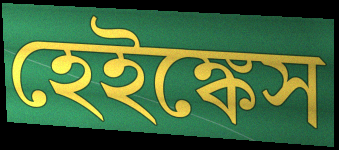
হেইঙ্কেস